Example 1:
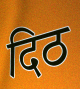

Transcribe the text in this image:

दिठ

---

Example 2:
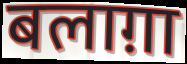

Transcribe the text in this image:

बलाग़ा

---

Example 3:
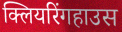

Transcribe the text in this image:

क्लियरिंगहाउस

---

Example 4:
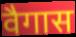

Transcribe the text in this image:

वैगास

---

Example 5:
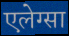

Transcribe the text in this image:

एलेग्सा